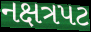
નક્ષત્રપટ